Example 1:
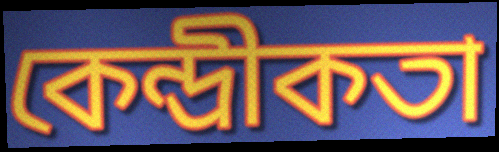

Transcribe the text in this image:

কেন্দ্রীকতা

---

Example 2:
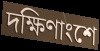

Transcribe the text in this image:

দক্ষিণাংশে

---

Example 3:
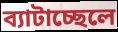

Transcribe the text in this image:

ব্যাটাচ্ছেলে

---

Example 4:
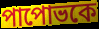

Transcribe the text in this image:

পাপোভকে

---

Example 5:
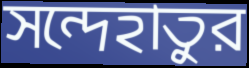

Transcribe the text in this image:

সন্দেহাতুর